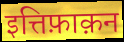
इत्तिफ़ाक़न